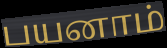
பயனாம்